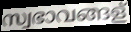
സ്വഭാവങ്ങള്